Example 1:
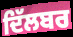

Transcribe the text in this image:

ਦਿੱਲਬਰ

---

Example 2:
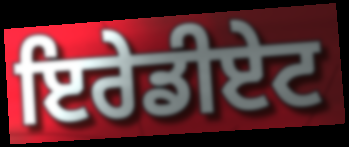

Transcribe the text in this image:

ਇਰੇਡੀਏਟ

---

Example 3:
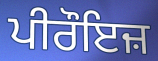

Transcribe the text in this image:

ਪੀਰੌਇਜ਼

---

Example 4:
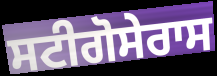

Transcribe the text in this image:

ਸਟੀਗੋਸੇਰਾਸ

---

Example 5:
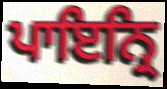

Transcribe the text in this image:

ਪਾਇਨ੍ਰਿ